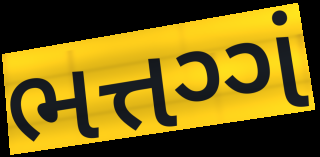
ભત્તગ્ગં